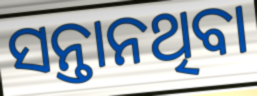
ସନ୍ତାନଥିବା